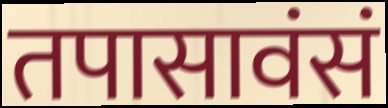
तपासावंसं